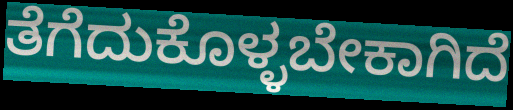
ತೆಗೆದುಕೊಳ್ಳಬೇಕಾಗಿದೆ